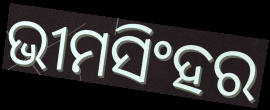
ଭୀମସିଂହର